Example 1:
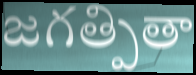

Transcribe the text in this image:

జగత్పితా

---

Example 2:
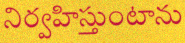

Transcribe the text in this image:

నిర్వహిస్తుంటాను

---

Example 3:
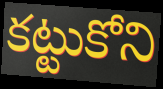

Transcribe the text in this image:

కట్టుకోని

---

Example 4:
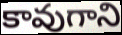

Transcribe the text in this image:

కావుగాని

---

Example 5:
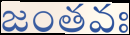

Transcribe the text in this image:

జంతవః